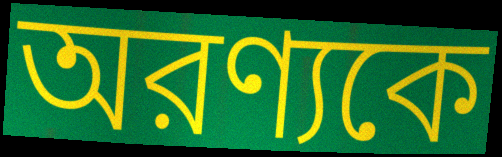
অরণ্যকে